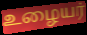
உழையர்